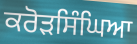
ਕਰੋੜਸਿੰਘਿਆ